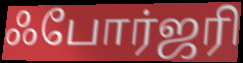
ஃபோர்ஜரி